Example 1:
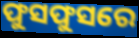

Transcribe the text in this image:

ଫୁସଫୁସରେ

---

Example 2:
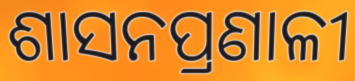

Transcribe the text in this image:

ଶାସନପ୍ରଣାଳୀ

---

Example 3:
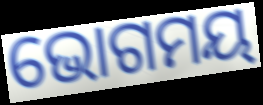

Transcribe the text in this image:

ଭୋଗମୟ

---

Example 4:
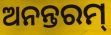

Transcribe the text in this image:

ଅନନ୍ତରମ୍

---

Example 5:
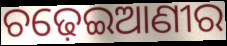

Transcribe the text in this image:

ଚଢ଼େଇଆଣୀର